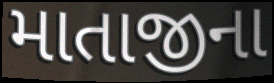
માતાજીના